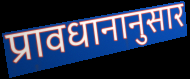
प्रावधानानुसार